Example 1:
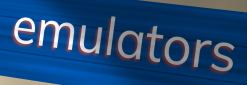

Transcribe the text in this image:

emulators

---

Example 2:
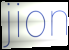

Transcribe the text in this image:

jion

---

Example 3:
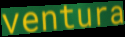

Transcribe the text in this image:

ventura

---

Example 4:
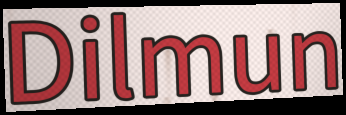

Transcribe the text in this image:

Dilmun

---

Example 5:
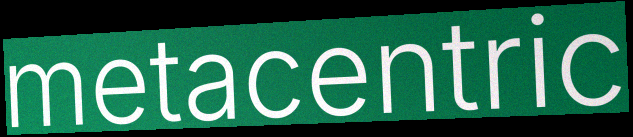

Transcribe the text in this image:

metacentric